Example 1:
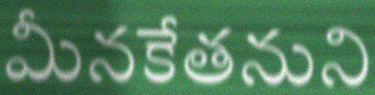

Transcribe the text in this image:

మీనకేతనుని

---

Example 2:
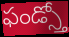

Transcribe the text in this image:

ఫండ్స్తో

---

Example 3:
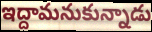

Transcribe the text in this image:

ఇద్దామనుకున్నాడు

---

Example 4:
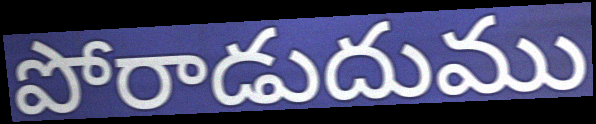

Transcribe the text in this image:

పోరాడుదుము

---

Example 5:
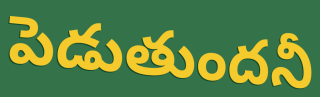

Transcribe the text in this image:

పెడుతుందనీ